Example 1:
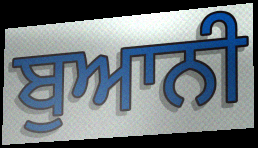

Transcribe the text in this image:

ਬੁਆਨੀ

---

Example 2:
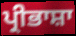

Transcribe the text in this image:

ਪ੍ਰੀਭਾਸ਼ਾ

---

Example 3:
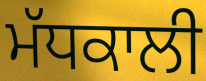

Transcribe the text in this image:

ਮੱਧਕਾਲੀ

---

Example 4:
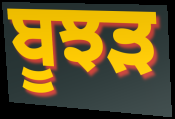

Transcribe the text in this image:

ਬੂਝੜ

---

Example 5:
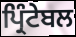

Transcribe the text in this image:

ਪ੍ਰਿੰਟੇਬਲ